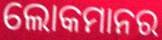
ଲୋକମାନର